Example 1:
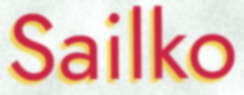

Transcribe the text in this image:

Sailko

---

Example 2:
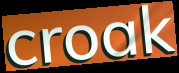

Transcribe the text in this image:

croak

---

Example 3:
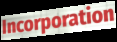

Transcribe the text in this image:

Incorporation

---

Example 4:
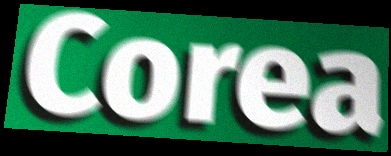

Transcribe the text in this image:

Corea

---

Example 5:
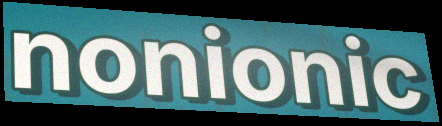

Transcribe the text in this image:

nonionic